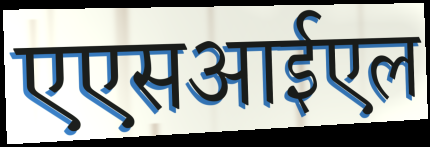
एएसआईएल